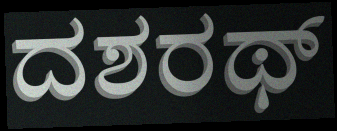
ದಶರಥ್